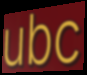
ubc